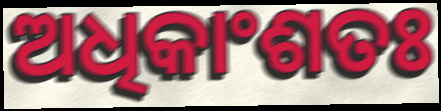
ଅଧିକାଂଶତଃ